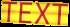
TEXT